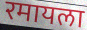
रमायला